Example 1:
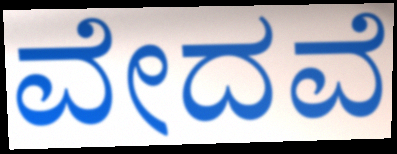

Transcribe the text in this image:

ವೇದವೆ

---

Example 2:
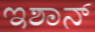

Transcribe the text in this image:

ಇಶಾನ್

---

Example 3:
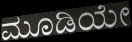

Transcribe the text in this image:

ಮೂಡಿಯೇ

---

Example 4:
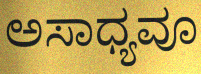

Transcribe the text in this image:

ಅಸಾಧ್ಯವೂ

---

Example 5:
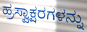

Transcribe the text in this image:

ಹ್ರಸ್ವಾಕ್ಷರಗಳನ್ನು